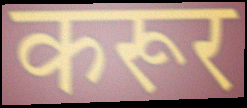
करूर